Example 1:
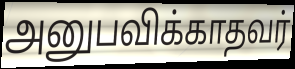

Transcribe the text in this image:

அனுபவிக்காதவர்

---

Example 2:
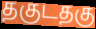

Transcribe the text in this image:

தகுடதகு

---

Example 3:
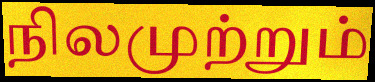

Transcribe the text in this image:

நிலமுற்றும்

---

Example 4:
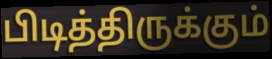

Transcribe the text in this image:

பிடித்திருக்கும்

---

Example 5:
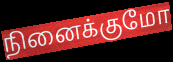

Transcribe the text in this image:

நினைக்குமோ